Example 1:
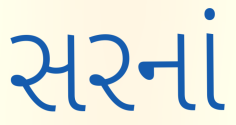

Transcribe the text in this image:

સરનાં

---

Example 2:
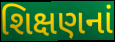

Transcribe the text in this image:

શિક્ષણનાં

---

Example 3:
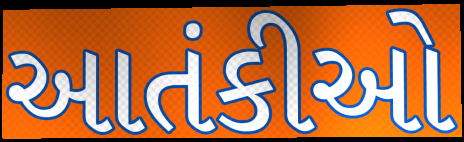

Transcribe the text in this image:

આતંકીઓ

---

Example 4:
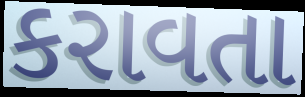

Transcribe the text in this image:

કરાવતા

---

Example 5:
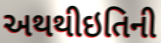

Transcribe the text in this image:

અથથીઇતિની